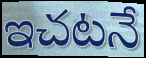
ఇచటనే